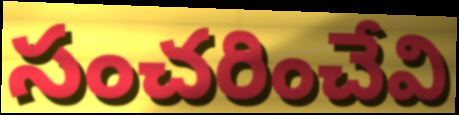
సంచరించేవి